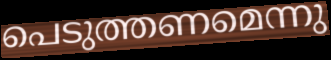
പെടുത്തണമെന്നു